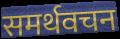
समर्थवचन